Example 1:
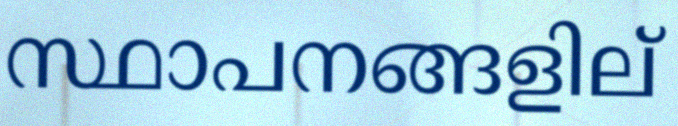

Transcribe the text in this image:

സ്ഥാപനങ്ങളില്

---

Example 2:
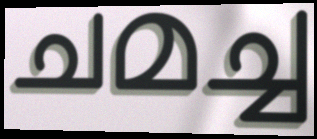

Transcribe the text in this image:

ചമച്ച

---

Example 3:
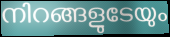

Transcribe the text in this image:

നിറങ്ങളുടേയും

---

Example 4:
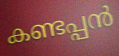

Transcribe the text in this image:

കണ്ടപ്പൻ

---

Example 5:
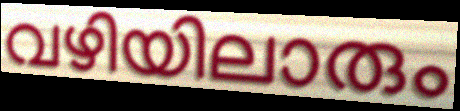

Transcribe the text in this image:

വഴിയിലാരും